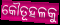
କୌତୂହଳକୁ